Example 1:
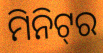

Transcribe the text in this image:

ମିନିଟ୍‌ର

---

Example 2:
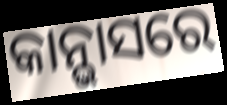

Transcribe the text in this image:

କାନ୍ଭାସରେ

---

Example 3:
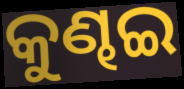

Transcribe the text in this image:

କୁଣ୍ଢଇ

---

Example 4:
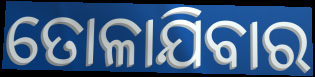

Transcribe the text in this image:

ତୋଳାଯିବାର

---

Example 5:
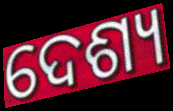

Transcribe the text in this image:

ଦେଶ୍ୟ